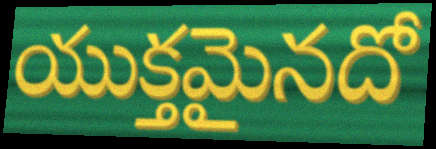
యుక్తమైనదో